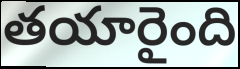
తయారైంది